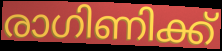
രാഗിണിക്ക്